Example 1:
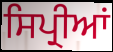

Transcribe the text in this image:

ਸਿਪ੍ਰੀਆਂ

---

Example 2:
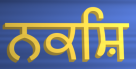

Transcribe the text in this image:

ਨਕਸ਼ਿ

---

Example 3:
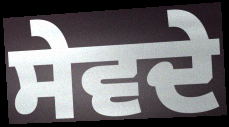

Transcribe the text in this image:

ਸੇਵਦੇ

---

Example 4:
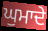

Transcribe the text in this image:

ਘੁਮਾਦੇ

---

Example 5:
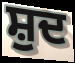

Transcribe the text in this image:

ਸ਼ੁਦ